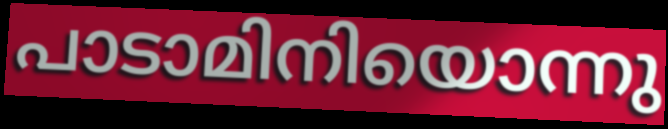
പാടാമിനിയൊന്നു